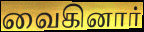
வைகினார்